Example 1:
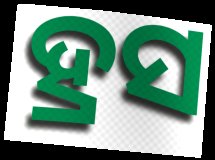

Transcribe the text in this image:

ହ୍ରସ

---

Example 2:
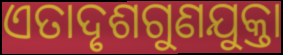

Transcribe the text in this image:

ଏତାଦୃଶଗୁଣଯୁକ୍ତା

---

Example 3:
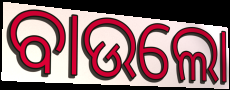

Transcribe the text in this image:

ବାଉଲୋ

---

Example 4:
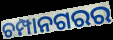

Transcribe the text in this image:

ଚମ୍ପାନଗରର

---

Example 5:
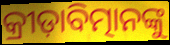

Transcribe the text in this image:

କ୍ରୀଡ଼ାବିତ୍ମାନଙ୍କୁ